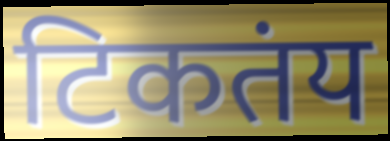
टिकतंय